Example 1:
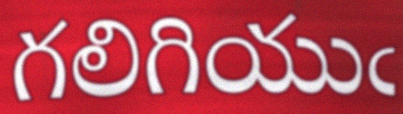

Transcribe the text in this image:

గలిగియుఁ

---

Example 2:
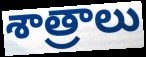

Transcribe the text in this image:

శాత్రాలు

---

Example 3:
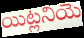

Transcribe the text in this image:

యిట్లనియె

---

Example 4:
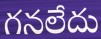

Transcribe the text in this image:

గనలేదు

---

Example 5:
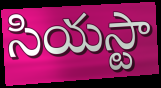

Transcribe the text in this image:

సియస్టా